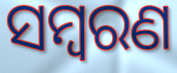
ସମ୍ୱରଣ